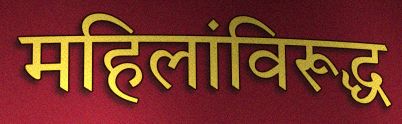
महिलांविरूद्ध